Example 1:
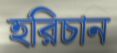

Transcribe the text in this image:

হরিচান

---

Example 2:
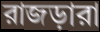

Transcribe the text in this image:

রাজড়ারা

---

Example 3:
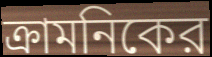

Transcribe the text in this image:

ক্রামনিকের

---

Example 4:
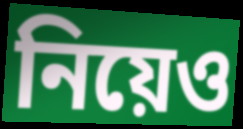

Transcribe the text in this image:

নিয়েও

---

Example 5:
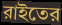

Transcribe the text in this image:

রাইতের